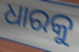
ଧାରକୁ